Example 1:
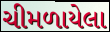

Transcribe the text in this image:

ચીમળાયેલા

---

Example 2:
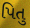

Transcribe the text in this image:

પિતુ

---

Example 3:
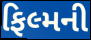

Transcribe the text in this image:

ફિલ્મની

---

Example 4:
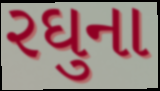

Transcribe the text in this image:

રઘુના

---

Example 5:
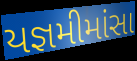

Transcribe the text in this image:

યજ્ઞમીમાંસા